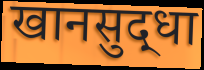
खानसुद्धा